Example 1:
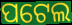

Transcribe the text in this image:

ପଟେଲ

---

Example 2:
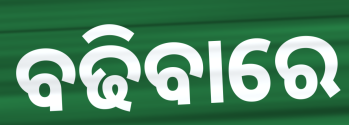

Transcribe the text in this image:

ବଢିବାରେ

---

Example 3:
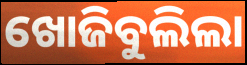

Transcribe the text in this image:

ଖୋଜିବୁଲିଲା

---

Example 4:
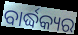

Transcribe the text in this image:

ବାର୍ଦ୍ଧକ୍ୟର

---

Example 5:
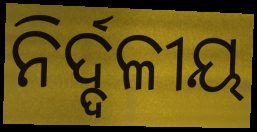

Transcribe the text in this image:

ନିର୍ଦ୍ଦଳୀୟ